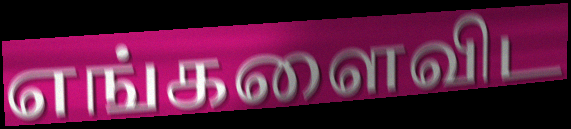
எங்களைவிட